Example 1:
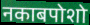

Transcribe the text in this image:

नकाबपोशो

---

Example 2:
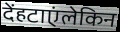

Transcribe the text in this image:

देंहटाएंलेकिन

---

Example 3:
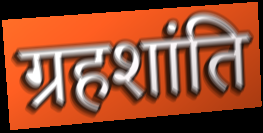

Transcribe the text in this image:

ग्रहशांति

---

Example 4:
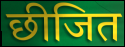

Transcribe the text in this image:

छीजित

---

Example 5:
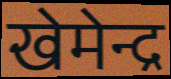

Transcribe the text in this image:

खेमेन्द्र